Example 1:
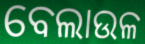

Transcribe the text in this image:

ବେଲାଉଳ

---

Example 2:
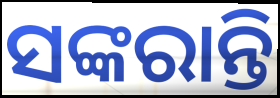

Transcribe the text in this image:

ସଙ୍କରାନ୍ତି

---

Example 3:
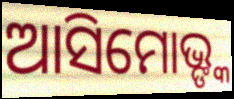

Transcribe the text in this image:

ଆସିମୋଭ୍ଙ୍କ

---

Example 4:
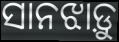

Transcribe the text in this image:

ସାନଝାଡ଼ୁ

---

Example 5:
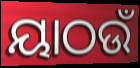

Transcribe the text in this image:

ୟାଠଉଁ